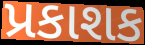
પ્રકાશક